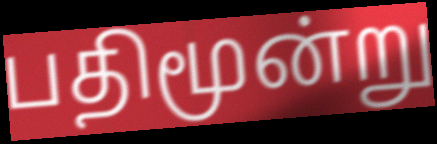
பதிமூன்று